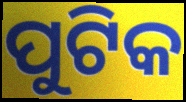
ପୁଟିକ